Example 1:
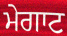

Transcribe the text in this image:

ਮੇਗਾਟ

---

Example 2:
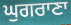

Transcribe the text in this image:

ਘੁਗਰਾਣਾ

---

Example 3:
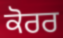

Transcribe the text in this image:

ਕੋਰਰ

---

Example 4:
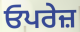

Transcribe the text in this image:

ਓਪਰੇਜ਼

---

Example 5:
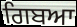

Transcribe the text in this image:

ਗਿਬਆ